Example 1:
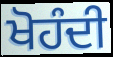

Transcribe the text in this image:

ਖੋਹੰਦੀ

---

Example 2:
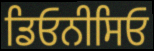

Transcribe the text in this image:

ਡਿਓਨੀਸਿਓ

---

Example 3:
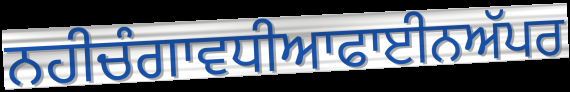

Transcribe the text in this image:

ਨਹੀਚੰਗਾਵਧੀਆਫਾਈਨਅੱਪਰ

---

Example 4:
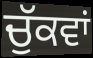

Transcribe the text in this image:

ਚੁੱਕਵਾਂ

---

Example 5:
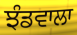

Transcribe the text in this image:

ਝੰਡਵਾਲਾ